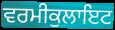
ਵਰਮੀਕੁਲਾਇਟ